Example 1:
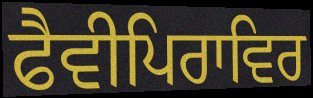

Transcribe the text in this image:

ਫੈਵੀਪਿਰਾਵਿਰ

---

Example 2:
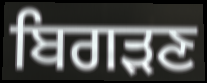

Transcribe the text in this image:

ਬਿਗੜਣ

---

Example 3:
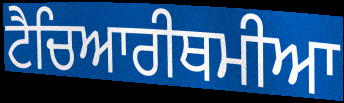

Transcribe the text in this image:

ਟੈਚਿਆਰੀਥਮੀਆ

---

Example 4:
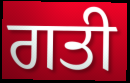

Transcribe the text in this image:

ਗਤੀ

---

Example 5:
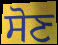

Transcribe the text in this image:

ਸੋਣ